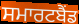
ਸਮਾਰਟਬੈਂਡ